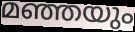
മഞ്ഞയും